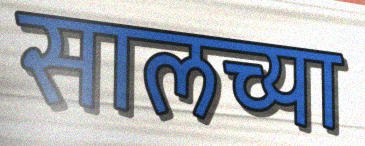
सालच्या